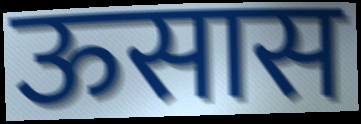
ऊसास